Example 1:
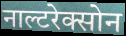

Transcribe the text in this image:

नाल्टरेक्सोन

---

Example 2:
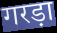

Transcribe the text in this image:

गरड़ा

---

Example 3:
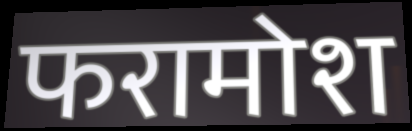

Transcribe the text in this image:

फरामोश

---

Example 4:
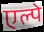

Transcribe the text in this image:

एल्पे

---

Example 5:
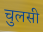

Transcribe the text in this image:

चुलसी